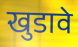
खुडावे